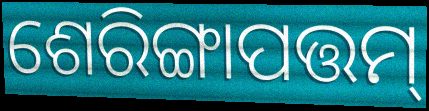
ଶେରିଙ୍ଗାପତ୍ତମ୍